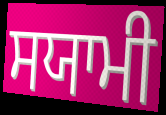
ਸਯਾਮੀ